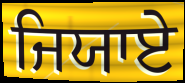
ਜਿਯਾਏ